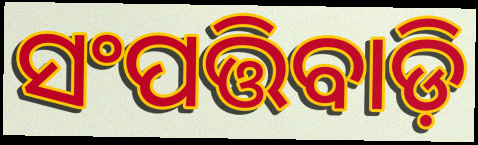
ସଂପତ୍ତିବାଡ଼ି